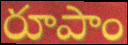
రూపాం